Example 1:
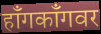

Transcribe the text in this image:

हॉंगकॉंगवर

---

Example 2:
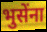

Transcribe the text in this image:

भुसेंना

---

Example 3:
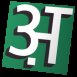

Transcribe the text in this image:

अ़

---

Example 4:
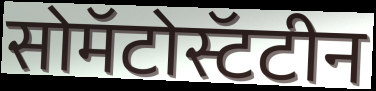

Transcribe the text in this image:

सोमॅटोस्टॅटीन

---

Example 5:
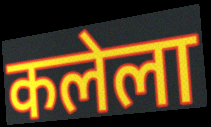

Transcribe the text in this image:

कलेला